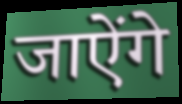
जाऐंगे